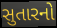
સુતારનો